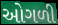
ઓગળી